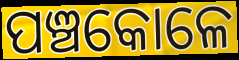
ପଞ୍ଚକୋଳେ